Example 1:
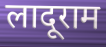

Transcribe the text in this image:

लादूराम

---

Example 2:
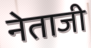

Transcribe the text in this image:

नेताजी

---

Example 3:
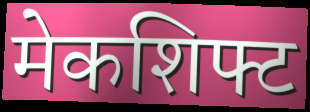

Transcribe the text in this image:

मेकशिफ्ट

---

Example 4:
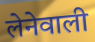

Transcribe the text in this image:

लेनेवाली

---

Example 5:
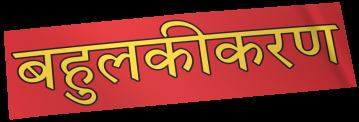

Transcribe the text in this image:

बहुलकीकरण